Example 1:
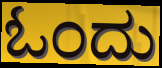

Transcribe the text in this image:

ಓಂದು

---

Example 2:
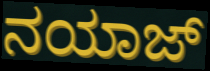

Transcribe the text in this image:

ನಯಾಜ್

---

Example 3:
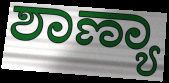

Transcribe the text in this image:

ಶಾಣ್ಯಾ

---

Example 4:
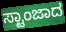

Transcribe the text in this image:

ಸ್ಟಾಂಜಾದ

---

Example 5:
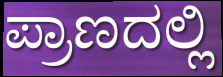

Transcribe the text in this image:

ಪ್ರಾಣದಲ್ಲಿ